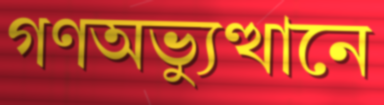
গণঅভ্যুত্থানে